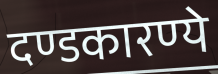
दण्डकारण्ये